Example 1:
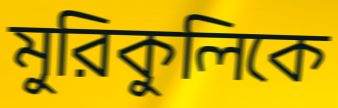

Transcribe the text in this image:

মুরিকুলিকে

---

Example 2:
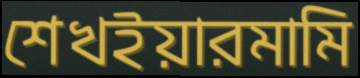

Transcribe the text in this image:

শেখইয়ারমামি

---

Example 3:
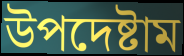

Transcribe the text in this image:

উপদেষ্টাম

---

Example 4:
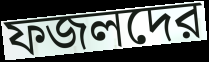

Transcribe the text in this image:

ফজলদের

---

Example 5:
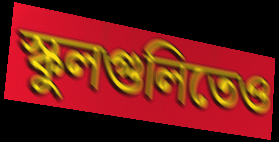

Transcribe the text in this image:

স্কুলগুলিতেও